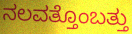
ನಲವತ್ತೊಂಬತ್ತು